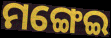
ମଙ୍ଗେଇ